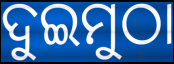
ଦୁଇମୁଠା